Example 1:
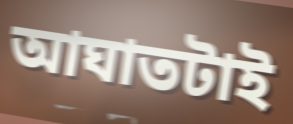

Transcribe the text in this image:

আঘাতটাই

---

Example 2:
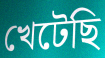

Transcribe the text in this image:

খেটেছি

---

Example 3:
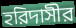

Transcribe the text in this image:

হরিদাসীর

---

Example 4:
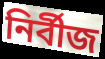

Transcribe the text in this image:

নির্বীজ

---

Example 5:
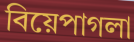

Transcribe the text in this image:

বিয়েপাগলা